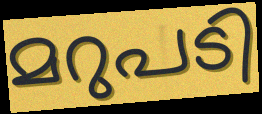
മറുപടി